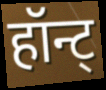
हॉन्ट्